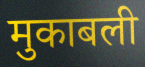
मुकाबली